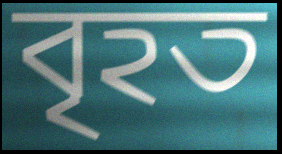
বৃহত